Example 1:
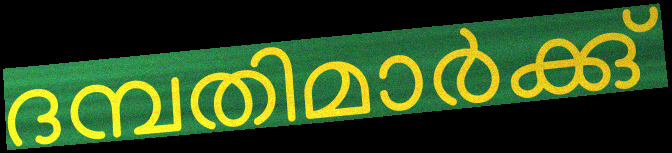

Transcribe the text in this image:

ദമ്പതിമാർക്കു്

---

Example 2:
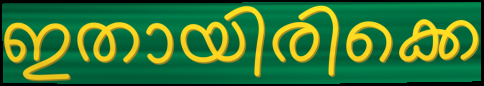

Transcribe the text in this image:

ഇതായിരിക്കെ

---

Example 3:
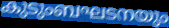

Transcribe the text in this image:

കുടുംബഘടനയും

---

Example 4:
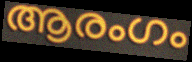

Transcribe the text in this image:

ആരംഗം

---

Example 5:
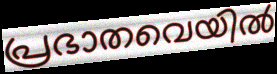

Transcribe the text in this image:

പ്രഭാതവെയിൽ